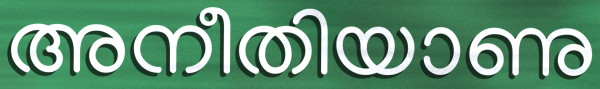
അനീതിയാണു